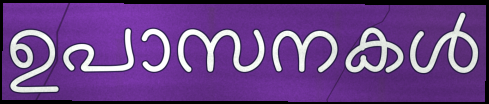
ഉപാസനകൾ